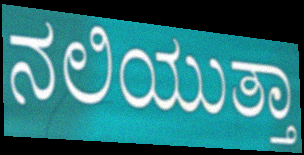
ನಲಿಯುತ್ತಾ